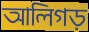
আলিগড়